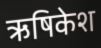
ऋषिकेश